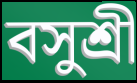
বসুশ্রী